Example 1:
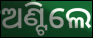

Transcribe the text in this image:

ଅଣ୍ଟିଲେ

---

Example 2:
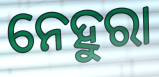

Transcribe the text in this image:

ନେହୁରା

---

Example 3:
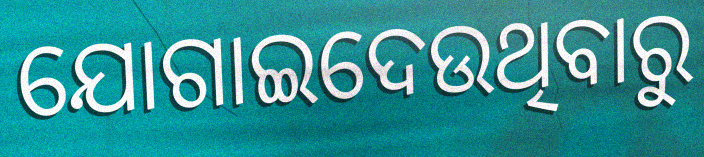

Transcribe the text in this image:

ଯୋଗାଇଦେଉଥିବାରୁ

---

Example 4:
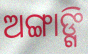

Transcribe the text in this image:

ଅଙ୍ଗାଙ୍ଗି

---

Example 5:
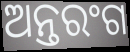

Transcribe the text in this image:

ଅନ୍ତରଂଗ